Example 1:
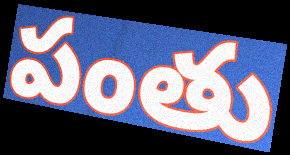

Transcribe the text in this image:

పంతు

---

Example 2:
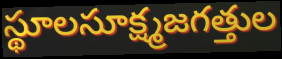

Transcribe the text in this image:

స్థూలసూక్ష్మజగత్తుల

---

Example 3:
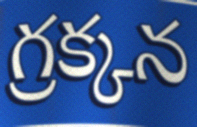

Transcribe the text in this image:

గ్రక్కన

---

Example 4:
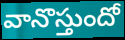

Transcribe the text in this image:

వానొస్తుందో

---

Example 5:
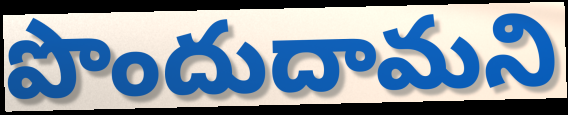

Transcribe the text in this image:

పొందుదామని